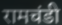
रामचंडी